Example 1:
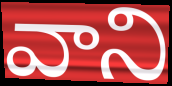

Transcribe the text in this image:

వాని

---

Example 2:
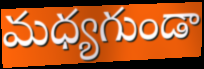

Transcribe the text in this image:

మధ్యగుండా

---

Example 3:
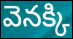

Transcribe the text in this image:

వెనక్కి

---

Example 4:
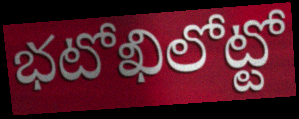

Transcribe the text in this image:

భటోఖిలోట్టో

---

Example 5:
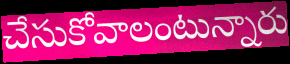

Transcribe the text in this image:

చేసుకోవాలంటున్నారు